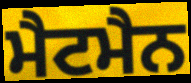
ਮੈਟਮੈਨ